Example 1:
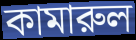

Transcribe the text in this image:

কামারুল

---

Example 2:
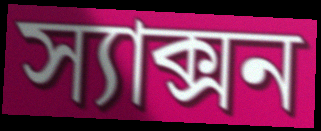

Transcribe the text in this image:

স্যাক্সন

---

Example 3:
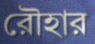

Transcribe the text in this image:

রৌহার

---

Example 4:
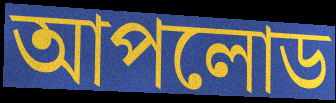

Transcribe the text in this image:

আপলোড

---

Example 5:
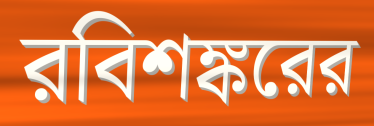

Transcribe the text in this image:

রবিশঙ্করের